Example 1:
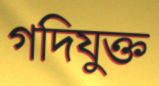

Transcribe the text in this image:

গদিযুক্ত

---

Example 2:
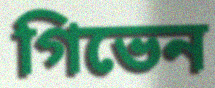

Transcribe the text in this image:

গিভেন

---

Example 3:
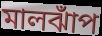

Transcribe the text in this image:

মালঝাঁপ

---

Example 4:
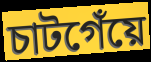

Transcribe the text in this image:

চাটগেঁয়ে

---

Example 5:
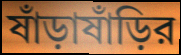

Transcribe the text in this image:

ষাঁড়াষাঁড়ির